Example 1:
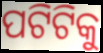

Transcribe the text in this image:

ପଟିଟିକୁ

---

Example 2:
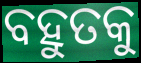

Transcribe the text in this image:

ବହୁତକୁ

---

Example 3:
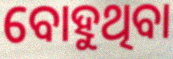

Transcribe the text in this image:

ବୋହୁଥିବା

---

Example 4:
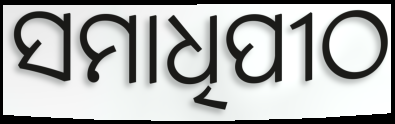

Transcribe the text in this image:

ସମାଧିପୀଠ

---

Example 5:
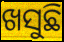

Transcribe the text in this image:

ଖସୁଛି